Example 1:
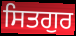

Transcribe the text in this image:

ਸਿਤਗੁਰ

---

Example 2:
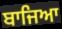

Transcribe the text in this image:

ਬਾਜਿਆ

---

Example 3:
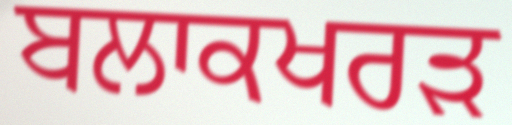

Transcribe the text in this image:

ਬਲਾਕਖਰੜ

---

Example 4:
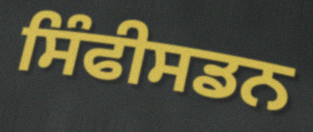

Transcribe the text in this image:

ਸਿੰਫੀਸਡਨ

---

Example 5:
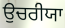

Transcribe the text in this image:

ਉਚਰੀਯਾ